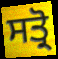
ਸਤ੍ਰੋ